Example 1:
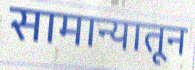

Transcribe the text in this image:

सामान्यातून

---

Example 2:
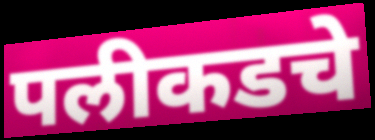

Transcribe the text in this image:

पलीकडचे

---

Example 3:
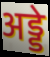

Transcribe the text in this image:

अड्डे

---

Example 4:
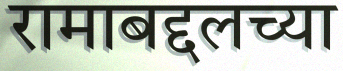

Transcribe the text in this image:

रामाबद्दलच्या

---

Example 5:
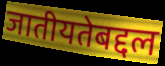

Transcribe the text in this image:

जातीयतेबद्दल